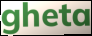
gheta